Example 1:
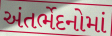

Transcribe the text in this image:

અંતર્ભેદનોમાં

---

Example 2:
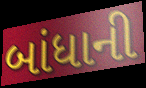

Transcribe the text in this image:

બાંધાની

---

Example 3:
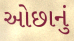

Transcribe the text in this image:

ઓછાનું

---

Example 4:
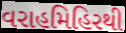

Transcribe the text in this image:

વરાહમિહિરથી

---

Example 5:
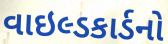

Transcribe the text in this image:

વાઇલ્ડકાર્ડનો